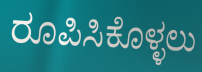
ರೂಪಿಸಿಕೊಳ್ಳಲು